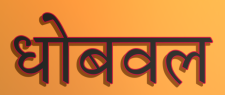
धोबवल